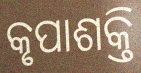
କୃପାଶକ୍ତି